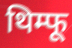
थिम्फू